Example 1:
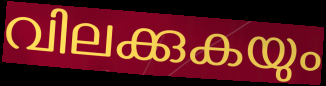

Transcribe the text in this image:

വിലക്കുകയും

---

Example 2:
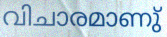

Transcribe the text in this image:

വിചാരമാണു്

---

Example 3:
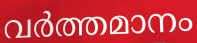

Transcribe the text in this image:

വർത്തമാനം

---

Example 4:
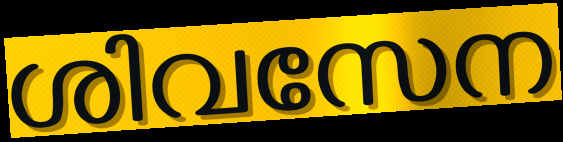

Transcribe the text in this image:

ശിവസേന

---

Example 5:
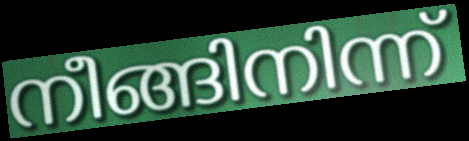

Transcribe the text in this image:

നീങ്ങിനിന്ന്